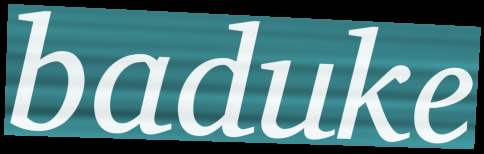
baduke